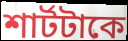
শার্টটাকে